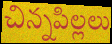
చిన్నపిల్లలు